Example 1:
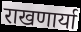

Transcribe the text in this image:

राखणार्या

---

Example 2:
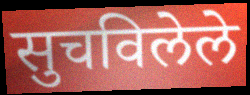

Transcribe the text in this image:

सुचविलेले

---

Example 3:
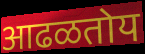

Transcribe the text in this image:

आढळतोय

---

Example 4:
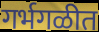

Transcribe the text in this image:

गर्भगळीत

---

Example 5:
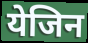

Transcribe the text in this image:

येजिन